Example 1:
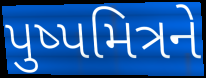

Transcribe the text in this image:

પુષ્પમિત્રને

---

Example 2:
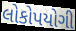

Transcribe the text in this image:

લોકોપયોગી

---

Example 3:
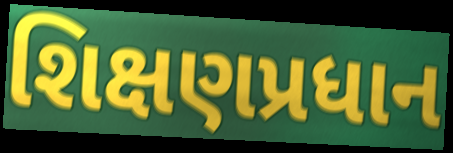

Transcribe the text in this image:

શિક્ષણપ્રધાન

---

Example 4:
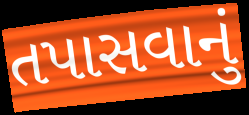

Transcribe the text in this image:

તપાસવાનું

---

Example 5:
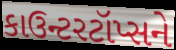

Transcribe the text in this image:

કાઉન્ટરટૉપ્સને